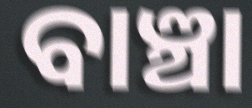
ବାଞ୍ଚା